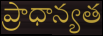
ప్రాధాన్యత